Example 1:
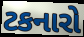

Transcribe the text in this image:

ટકનારો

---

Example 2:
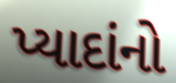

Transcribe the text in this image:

પ્યાદાંનો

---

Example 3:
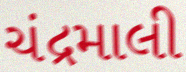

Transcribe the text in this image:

ચંદ્રમાલી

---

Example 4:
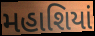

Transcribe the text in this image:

મહાશિયાં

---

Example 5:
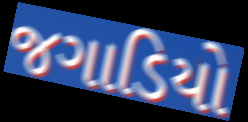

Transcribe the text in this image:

જગાડિયો